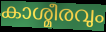
കാശ്മീരവും